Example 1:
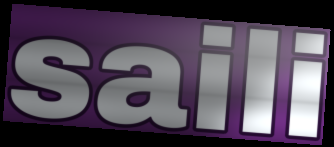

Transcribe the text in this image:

saili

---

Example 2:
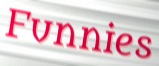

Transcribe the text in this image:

Funnies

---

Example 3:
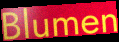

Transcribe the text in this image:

Blumen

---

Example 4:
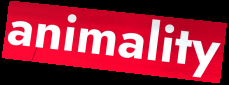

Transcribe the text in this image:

animality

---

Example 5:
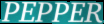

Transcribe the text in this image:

PEPPER